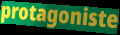
protagoniste